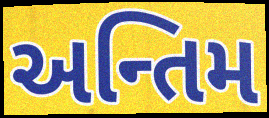
અન્તિમ